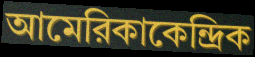
আমেরিকাকেন্দ্রিক